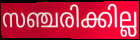
സഞ്ചരിക്കില്ല